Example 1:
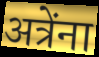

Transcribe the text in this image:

अत्रेंना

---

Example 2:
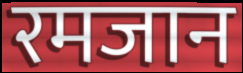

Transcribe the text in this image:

रमजान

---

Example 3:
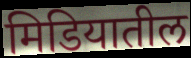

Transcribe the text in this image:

मिडियातील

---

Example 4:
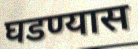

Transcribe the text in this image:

घडण्यास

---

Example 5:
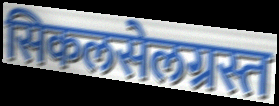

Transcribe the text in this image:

सिकलसेलग्रस्त